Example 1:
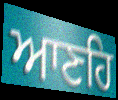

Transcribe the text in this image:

ਆਣਹਿ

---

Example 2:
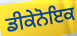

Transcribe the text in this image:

ਡੀਕੇਨੋਇਕ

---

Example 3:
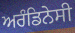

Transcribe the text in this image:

ਅਰੰਡਿਨੇਸੀ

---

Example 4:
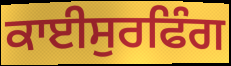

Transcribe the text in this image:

ਕਾਈਸੁਰਫਿੰਗ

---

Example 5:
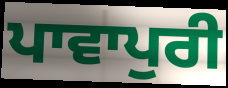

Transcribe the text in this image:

ਪਾਵਾਪੁਰੀ